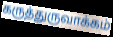
கருத்துருவாக்கம்